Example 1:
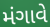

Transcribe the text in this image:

મંગાવે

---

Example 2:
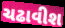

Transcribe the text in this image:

ચઢાવીશ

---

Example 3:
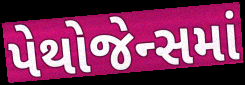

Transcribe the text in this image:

પેથોજેન્સમાં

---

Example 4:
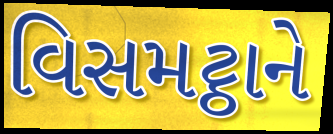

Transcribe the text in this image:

વિસમટ્ઠાને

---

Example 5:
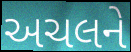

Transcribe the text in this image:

અચલને